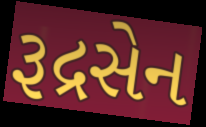
રૂદ્રસેન